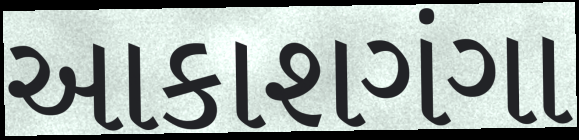
આકાશગંગા